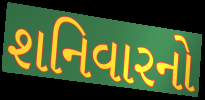
શનિવારનો